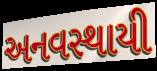
અનવસ્થાયી